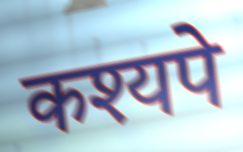
कश्यपे